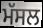
ਮੱਸਲ